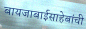
बायजाबाईसाहेबांची